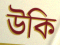
উকি